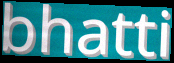
bhatti